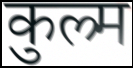
कुल्म